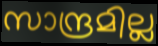
സാന്ദ്രമില്ല